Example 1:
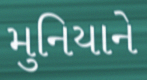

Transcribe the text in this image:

મુનિયાને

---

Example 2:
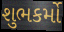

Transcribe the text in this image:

શુભકર્મો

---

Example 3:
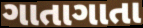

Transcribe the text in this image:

ગાતાગાતા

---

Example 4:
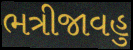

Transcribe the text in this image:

ભત્રીજાવહુ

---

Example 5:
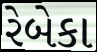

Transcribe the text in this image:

રેબેકા